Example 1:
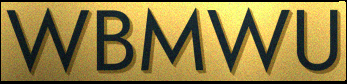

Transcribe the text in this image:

WBMWU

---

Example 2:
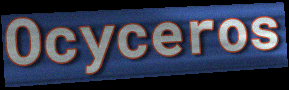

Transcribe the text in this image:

Ocyceros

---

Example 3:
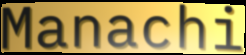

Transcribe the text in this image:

Manachi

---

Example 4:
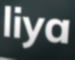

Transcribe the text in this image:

liya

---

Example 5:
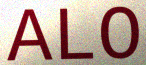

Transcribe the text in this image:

ALO